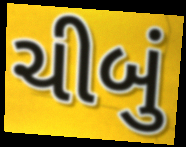
ચીબું